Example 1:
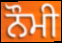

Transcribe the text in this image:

ਨੌਮੀ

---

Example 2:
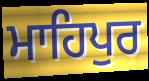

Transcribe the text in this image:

ਮਾਹਿਪੁਰ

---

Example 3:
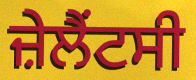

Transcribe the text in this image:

ਜ਼ੇਲੈਂਟਸੀ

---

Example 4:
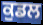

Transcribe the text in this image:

ਕੁਡਲ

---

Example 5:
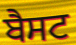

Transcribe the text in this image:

ਬੈਸਟ